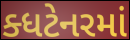
ક્ધટેનરમાં